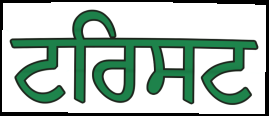
ਟਰਿਸਟ